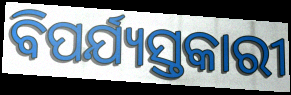
ବିପର୍ଯ୍ୟସ୍ତକାରୀ